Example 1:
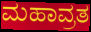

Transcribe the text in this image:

ಮಹಾವ್ರತ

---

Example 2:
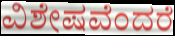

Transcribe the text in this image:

ವಿಶೇಷವೆಂದರೆ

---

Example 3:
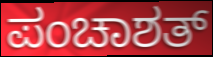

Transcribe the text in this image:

ಪಂಚಾಶತ್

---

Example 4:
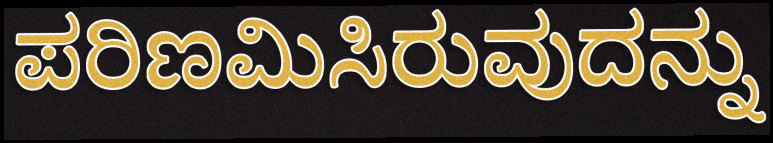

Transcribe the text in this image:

ಪರಿಣಮಿಸಿರುವುದನ್ನು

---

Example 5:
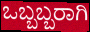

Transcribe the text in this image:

ಒಬ್ಬಬ್ಬರಾಗಿ